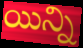
యిన్ని